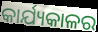
କାର୍ଯ୍ୟକାଳର